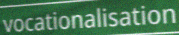
vocationalisation